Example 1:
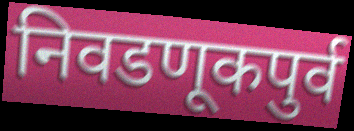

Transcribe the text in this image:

निवडणूकपुर्व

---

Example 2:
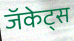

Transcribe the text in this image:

जॅकेट्स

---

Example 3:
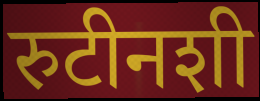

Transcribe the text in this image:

रुटीनशी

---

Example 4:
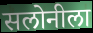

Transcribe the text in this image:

सलोनीला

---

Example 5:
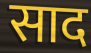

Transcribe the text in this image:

साद